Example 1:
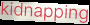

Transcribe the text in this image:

kidnapping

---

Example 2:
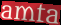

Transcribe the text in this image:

amta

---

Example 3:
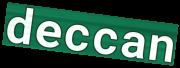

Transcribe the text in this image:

deccan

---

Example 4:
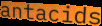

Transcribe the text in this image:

antacids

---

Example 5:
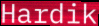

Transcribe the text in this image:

Hardik